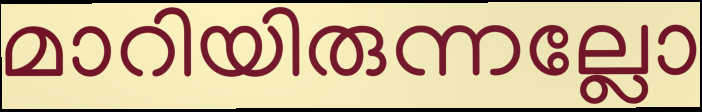
മാറിയിരുന്നല്ലോ